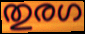
തുരഗ